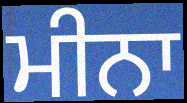
ਮੀਨਾ